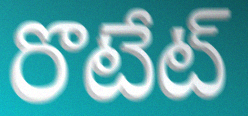
రొటేట్